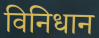
विनिधान